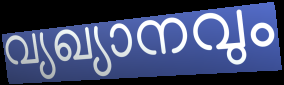
വ്യഖ്യാനവും